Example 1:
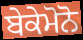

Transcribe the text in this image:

ਬੇਕੇਮੋਨੋ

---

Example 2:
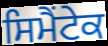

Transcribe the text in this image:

ਸਿਮੈਂਟੇਕ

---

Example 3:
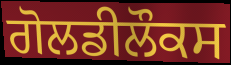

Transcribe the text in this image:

ਗੋਲਡੀਲੌਕਸ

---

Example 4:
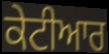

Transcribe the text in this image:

ਕੇਟੀਆਰ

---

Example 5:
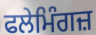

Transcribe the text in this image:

ਫਲੇਮਿੰਗਜ਼